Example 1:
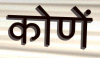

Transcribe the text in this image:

कोणें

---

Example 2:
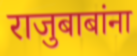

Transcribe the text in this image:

राजुबाबांना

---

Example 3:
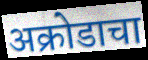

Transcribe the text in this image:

अक्रोडाचा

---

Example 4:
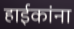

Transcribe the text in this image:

हाईकांना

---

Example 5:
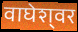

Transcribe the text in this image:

वाघेश्वर